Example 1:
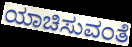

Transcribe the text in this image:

ಯಾಚಿಸುವಂತೆ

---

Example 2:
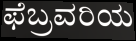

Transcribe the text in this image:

ಫೆಬ್ರವರಿಯ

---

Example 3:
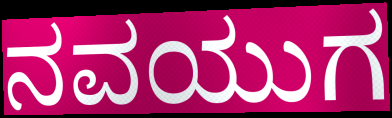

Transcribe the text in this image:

ನವಯುಗ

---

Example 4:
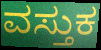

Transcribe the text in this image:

ವಸ್ತುಕ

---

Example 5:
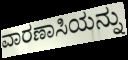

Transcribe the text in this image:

ವಾರಣಾಸಿಯನ್ನು